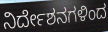
ನಿರ್ದೇಶನಗಳಿಂದ